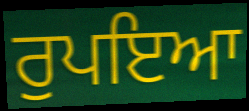
ਰੁਪਇਆ